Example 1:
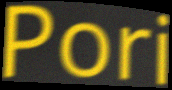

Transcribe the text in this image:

Pori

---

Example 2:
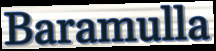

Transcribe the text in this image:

Baramulla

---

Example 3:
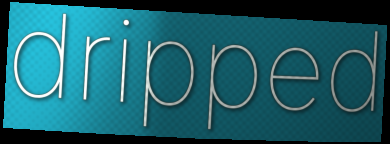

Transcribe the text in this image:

dripped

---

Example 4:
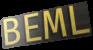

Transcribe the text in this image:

BEML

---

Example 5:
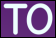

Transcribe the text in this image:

TO